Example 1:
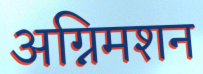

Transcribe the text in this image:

अग्निमशन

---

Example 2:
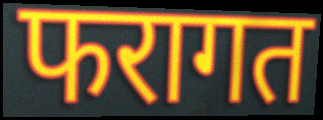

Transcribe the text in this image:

फरागत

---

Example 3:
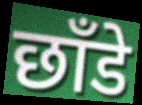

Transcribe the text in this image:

छाँडे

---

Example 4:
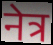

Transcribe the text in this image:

नेत्र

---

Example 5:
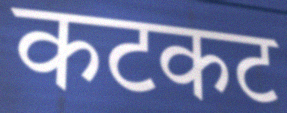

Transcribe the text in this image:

कटकट